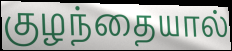
குழந்தையால்